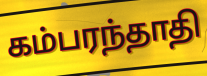
கம்பரந்தாதி